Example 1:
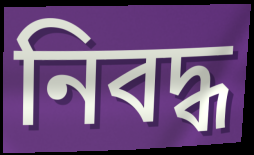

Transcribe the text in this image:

নিবদ্ধ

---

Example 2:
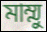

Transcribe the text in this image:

মাম্মু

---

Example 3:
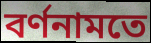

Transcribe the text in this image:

বর্ণনামতে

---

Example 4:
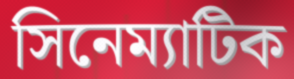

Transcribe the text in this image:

সিনেম্যাটিক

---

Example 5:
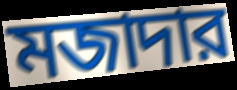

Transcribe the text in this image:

মজাদার